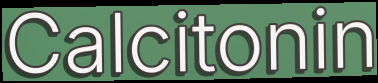
Calcitonin